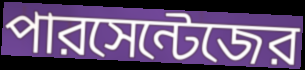
পারসেন্টেজের